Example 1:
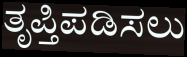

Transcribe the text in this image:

ತೃಪ್ತಿಪಡಿಸಲು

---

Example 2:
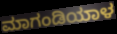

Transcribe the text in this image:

ಮಾಗಂಡಿಯಾಳ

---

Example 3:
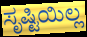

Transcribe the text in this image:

ಸೃಷ್ಟಿಯಿಲ್ಲ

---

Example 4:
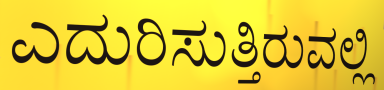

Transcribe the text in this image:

ಎದುರಿಸುತ್ತಿರುವಲ್ಲಿ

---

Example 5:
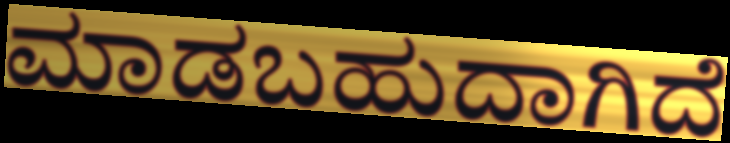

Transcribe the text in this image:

ಮಾಡಬಹುದಾಗಿದೆ